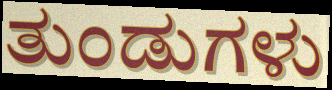
ತುಂಡುಗಳು